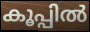
കൂപ്പിൽ